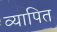
व्यापित